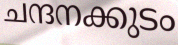
ചന്ദനക്കുടം